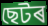
ছেটৰ